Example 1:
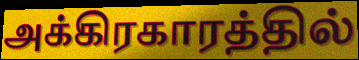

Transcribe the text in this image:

அக்கிரகாரத்தில்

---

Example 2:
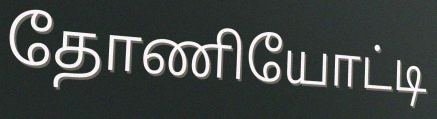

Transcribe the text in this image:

தோணியோட்டி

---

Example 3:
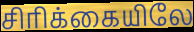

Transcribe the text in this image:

சிரிக்கையிலே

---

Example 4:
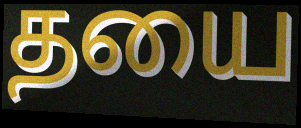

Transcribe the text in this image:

தயை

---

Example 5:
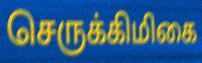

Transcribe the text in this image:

செருக்கிமிகை